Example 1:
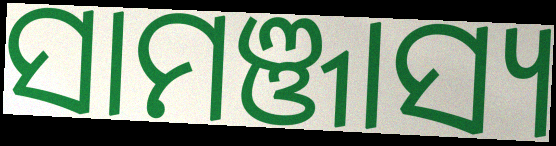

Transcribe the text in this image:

ସାମଞ୍ଜାସ୍ୟ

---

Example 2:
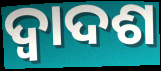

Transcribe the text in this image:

ଦ୍ଵାଦଶ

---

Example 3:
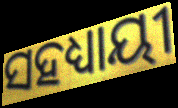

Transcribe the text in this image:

ସହଧ୍ୟାୟୀ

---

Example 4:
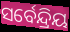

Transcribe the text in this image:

ସର୍ବେନ୍ଦ୍ରିୟ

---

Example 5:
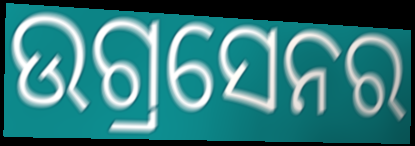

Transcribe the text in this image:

ଉଗ୍ରସେନର